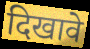
दिखावे